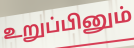
உறுப்பினும்